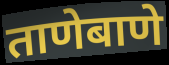
ताणेबाणे